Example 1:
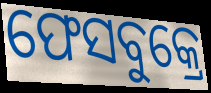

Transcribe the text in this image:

ଫେସବୁକ୍ରେ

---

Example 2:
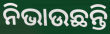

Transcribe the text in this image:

ନିଭାଉଛନ୍ତି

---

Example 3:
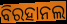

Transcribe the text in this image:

ବିରହାନଲ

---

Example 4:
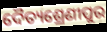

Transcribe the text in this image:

ଦୈତ୍ୟଶ୍ରେଣୀପୁର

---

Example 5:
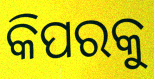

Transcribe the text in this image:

କିପରକୁ